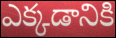
ఎక్కడానికి